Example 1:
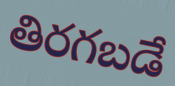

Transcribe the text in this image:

తిరగబడే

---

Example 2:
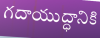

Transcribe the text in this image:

గదాయుద్ధానికి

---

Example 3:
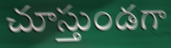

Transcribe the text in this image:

చూస్తుండగా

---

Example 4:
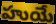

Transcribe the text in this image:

హుయే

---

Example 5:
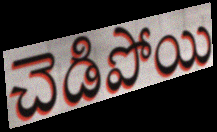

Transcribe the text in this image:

చెడిపోయి